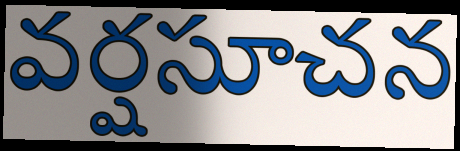
వర్షసూచన